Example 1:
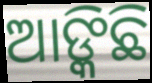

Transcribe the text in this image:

ଆଙ୍କିଛି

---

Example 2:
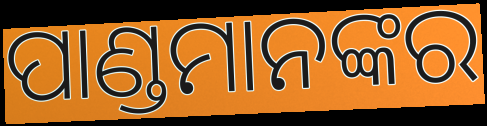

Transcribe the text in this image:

ପାଣ୍ଡମାନଙ୍କର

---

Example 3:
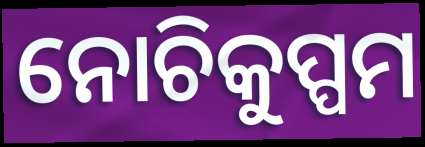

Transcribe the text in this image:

ନୋଚିକୁପ୍ପମ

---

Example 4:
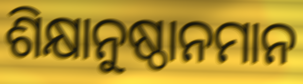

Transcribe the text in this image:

ଶିକ୍ଷାନୁଷ୍ଠାନମାନ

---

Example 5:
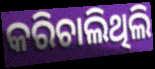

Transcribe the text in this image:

କରିଚାଲିଥିଲି